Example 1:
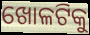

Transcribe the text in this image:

ଖୋଳଟିକୁ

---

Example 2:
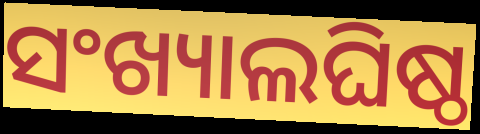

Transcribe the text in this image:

ସଂଖ୍ୟାଲଘିଷ୍ଠ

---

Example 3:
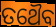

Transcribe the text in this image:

ତଥୈବ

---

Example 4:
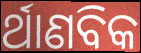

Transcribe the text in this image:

ର୍ଥାଣବିକ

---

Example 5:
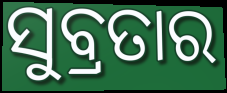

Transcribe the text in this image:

ସୁବ୍ରତାର